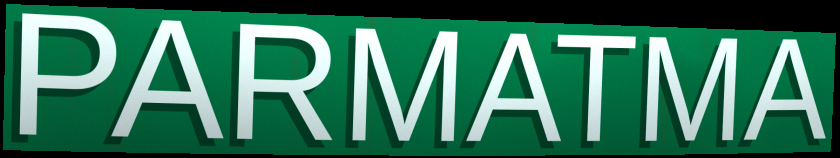
PARMATMA